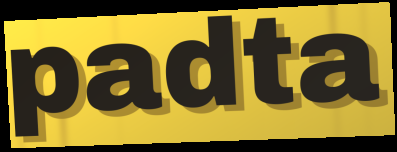
padta